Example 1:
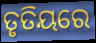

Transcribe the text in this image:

ତୃତିୟରେ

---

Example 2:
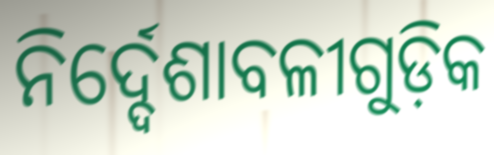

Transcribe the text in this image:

ନିର୍ଦ୍ଦେଶାବଳୀଗୁଡ଼ିକ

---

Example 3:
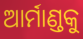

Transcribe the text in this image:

ଆର୍ମାଣ୍ଡକୁ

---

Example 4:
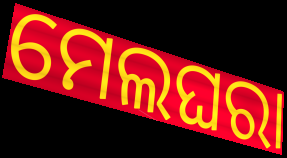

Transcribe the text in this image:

ମେଲଘରା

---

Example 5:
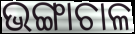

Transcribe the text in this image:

ଭଙ୍ଗାଚାଳ